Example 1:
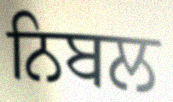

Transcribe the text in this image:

ਨਿਬਲ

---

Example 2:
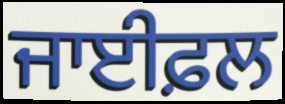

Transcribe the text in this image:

ਜਾਈਫ਼ਲ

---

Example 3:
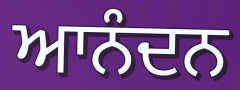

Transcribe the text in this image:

ਆਨੰਦਨ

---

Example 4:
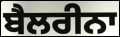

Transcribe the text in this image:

ਬੈਲਰੀਨਾ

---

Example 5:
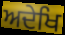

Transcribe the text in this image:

ਅਦੇਖਿ